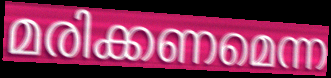
മരിക്കണമെന്ന